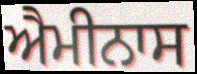
ਐਮੀਨਾਸ